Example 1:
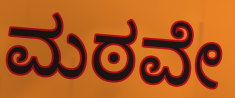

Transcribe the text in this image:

ಮಠವೇ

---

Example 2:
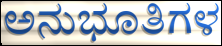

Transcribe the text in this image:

ಅನುಭೂತಿಗಳ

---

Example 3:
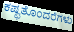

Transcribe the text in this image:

ಕಷ್ಟತೊಂದರೆಗಳು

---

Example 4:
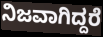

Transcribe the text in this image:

ನಿಜವಾಗಿದ್ದರೆ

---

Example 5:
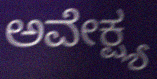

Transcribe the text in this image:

ಅವೇಕ್ಷ್ಯ